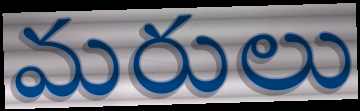
మరులు